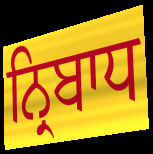
ਨ੍ਰਿਬਾਧ